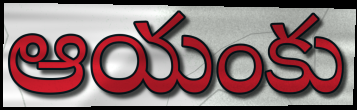
ఆయంకు